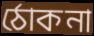
ঠোকনা